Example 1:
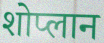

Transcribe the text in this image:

शोप्लान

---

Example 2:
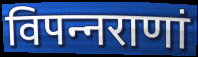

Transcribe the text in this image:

विपन्नराणां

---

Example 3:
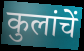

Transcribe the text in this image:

कुलांचें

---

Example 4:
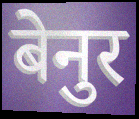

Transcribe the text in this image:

बेनुर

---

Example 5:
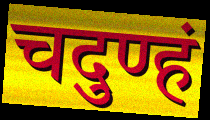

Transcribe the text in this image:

चदुण्हं